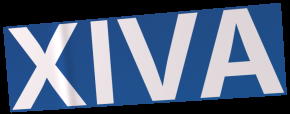
XIVA